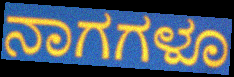
ನಾಗಗಳೂ